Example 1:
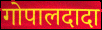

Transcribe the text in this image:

गोपालदादा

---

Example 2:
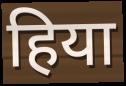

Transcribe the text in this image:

हिया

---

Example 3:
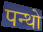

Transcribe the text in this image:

पन्थो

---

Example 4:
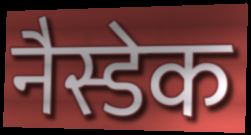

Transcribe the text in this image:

नैस्डेक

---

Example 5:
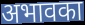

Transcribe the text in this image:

अभावका